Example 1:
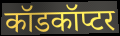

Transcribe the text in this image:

कॉडकॉप्टर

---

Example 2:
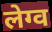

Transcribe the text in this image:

लेग्व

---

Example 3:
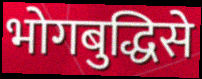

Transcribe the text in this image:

भोगबुद्धिसे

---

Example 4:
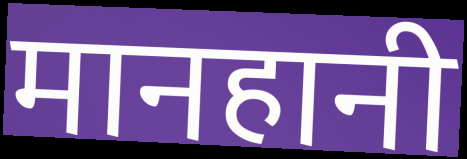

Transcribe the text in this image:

मानहानी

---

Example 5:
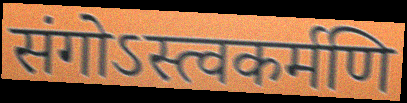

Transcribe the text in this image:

संगोऽस्त्वकर्मणि